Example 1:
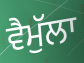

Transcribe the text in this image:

ਵੈਮੁੱਲਾ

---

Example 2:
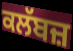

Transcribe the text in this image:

ਕਲੱਬਜ਼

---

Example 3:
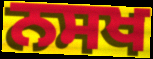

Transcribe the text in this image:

ਨਸਖ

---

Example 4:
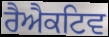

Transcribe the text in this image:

ਰੈਐਕਟਿਵ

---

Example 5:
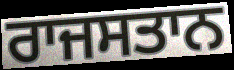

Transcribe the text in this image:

ਰਾਜਸਤਾਨ